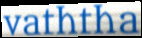
vaththa